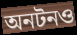
অনটনও